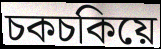
চকচকিয়ে